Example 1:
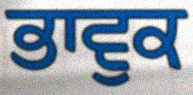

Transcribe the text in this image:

ਭਾਵੁਕ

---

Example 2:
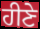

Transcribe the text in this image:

ਹੀਣੇ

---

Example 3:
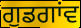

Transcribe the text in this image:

ਗੁਡਗਾਂਵ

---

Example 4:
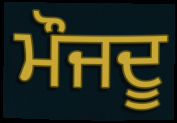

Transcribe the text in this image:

ਮੌਜਦੂ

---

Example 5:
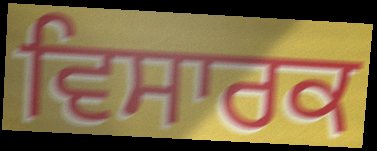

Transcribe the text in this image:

ਵਿਸਾਰਕ